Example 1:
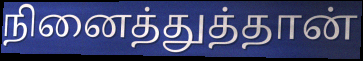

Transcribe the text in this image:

நினைத்துத்தான்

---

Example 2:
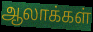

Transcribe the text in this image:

ஆலாக்கள்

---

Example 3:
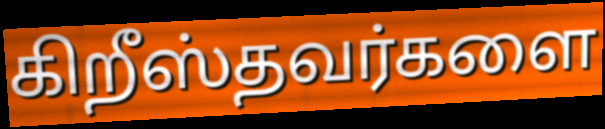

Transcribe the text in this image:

கிறீஸ்தவர்களை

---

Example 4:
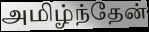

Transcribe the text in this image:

அமிழ்ந்தேன்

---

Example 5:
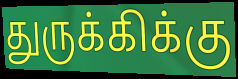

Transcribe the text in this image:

துருக்கிக்கு